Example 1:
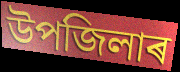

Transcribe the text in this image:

উপজিলাৰ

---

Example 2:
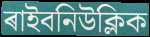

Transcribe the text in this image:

ৰাইবনিউক্লিক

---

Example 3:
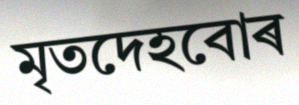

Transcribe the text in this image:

মৃতদেহবোৰ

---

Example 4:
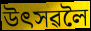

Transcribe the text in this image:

উৎসৱলৈ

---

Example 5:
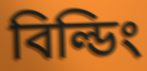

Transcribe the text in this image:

বিল্ডিং